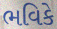
ભવિકે